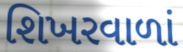
શિખરવાળાં